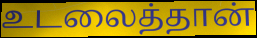
உடலைத்தான்